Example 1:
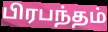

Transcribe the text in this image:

பிரபந்தம்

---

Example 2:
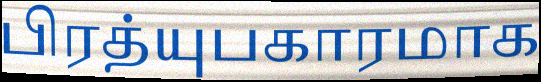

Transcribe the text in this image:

பிரத்யுபகாரமாக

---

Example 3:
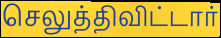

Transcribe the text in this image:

செலுத்திவிட்டார்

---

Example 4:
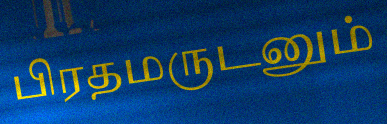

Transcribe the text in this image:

பிரதமருடனும்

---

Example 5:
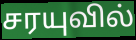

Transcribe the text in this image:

சரயுவில்